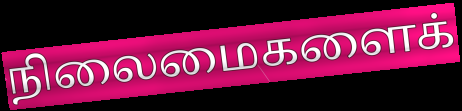
நிலைமைகளைக்